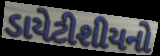
ડાયેટીશીયનો